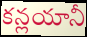
కన్లయానీ